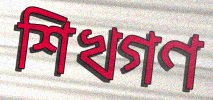
শিখগণ